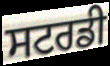
ਸਟਰਡੀ